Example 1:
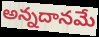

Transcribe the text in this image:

అన్నదానమే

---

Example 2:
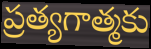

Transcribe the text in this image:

ప్రత్యగాత్మకు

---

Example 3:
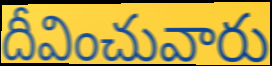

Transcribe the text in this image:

దీవించువారు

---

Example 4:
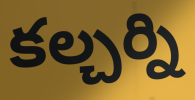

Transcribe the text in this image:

కల్చర్ని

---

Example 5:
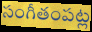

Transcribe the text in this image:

సంగీతంపట్ల